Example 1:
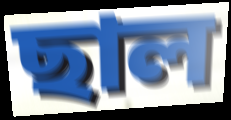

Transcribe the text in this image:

ছাল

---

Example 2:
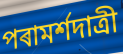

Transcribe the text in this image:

পৰামৰ্শদাত্ৰী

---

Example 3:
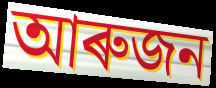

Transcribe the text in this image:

আৰুজন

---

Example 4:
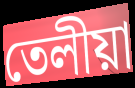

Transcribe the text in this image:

তেলীয়া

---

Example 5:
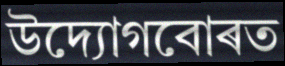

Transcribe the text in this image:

উদ্যোগবোৰত